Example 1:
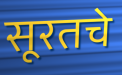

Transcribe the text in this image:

सूरतचे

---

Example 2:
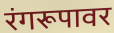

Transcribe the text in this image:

रंगरूपावर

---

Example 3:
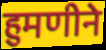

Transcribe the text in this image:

हुमणीने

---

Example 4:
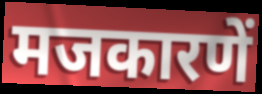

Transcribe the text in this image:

मजकारणें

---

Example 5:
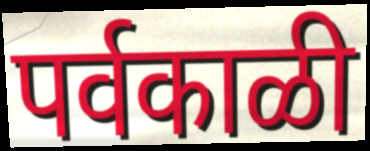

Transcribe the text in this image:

पर्वकाळी